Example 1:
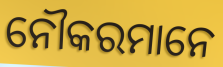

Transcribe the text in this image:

ନୌକରମାନେ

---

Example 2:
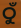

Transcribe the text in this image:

ଠୁଁ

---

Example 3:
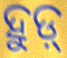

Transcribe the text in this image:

ହୁଡ଼୍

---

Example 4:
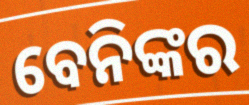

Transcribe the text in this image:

ବେନିଙ୍କର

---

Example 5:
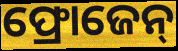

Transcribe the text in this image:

ଫ୍ରୋଜେନ୍